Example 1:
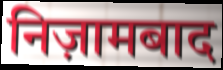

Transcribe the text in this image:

निज़ामबाद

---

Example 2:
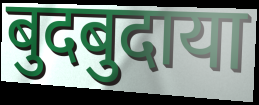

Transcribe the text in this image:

बुदबुदाया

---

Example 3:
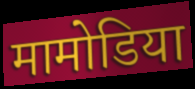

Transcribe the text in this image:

मामोडिया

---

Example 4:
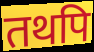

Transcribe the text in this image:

तथपि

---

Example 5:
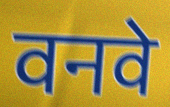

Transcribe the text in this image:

वनवे